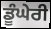
ਡੂੰਘੇਰੀ